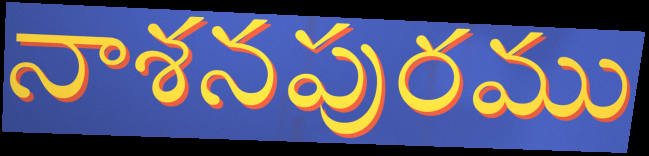
నాశనపురము